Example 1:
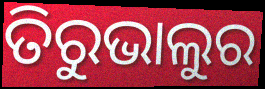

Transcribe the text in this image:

ତିରୁଭାଲୁର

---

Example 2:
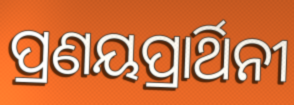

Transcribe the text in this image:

ପ୍ରଣୟପ୍ରାର୍ଥିନୀ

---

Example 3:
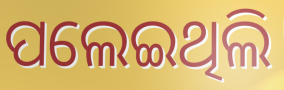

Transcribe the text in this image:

ପଲେଇଥିଲି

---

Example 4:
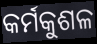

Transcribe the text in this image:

କର୍ମକୁଶଳ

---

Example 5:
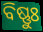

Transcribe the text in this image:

ବିଷ୍ଣୁଃ